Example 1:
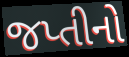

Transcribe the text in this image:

જપ્તીનો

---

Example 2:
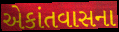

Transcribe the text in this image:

એકાંતવાસના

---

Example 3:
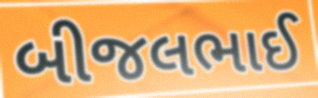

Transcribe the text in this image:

બીજલભાઈ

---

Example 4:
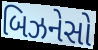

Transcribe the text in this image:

બિઝનેસો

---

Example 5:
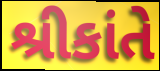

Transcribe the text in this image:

શ્રીકાંતે